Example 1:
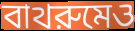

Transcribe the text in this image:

বাথরুমেও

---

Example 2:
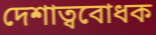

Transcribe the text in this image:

দেশাত্ববোধক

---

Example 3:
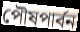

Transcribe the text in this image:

পৌষপার্বন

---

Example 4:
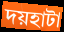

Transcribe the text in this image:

দয়হাটা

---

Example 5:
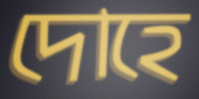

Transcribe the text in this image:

দোহে